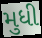
મુધી